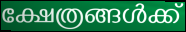
ക്ഷേത്രങ്ങൾക്ക്